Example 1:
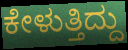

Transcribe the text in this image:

ಕೇಳುತ್ತಿದ್ದು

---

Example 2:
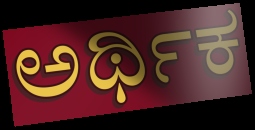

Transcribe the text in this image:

ಅರ್ಥಿಕ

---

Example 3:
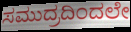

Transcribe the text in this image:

ಸಮುದ್ರದಿಂದಲೇ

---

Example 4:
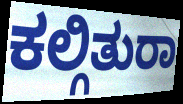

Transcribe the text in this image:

ಕಲ್ಗಿತುರಾ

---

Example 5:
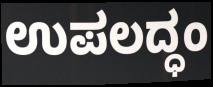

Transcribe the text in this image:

ಉಪಲದ್ಧಂ